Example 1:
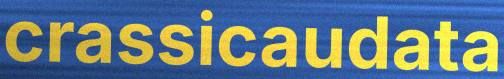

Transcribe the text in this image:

crassicaudata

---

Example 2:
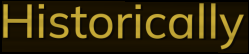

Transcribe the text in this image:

Historically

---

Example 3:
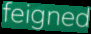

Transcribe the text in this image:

feigned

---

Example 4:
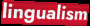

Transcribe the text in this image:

lingualism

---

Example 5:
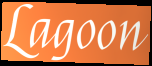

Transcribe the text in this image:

Lagoon